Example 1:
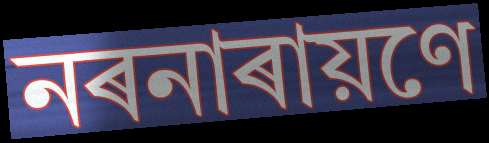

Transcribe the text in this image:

নৰনাৰায়ণে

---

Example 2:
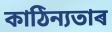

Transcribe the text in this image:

কাঠিন্যতাৰ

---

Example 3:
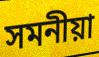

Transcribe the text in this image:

সমনীয়া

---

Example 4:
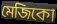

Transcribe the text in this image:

মেজিকো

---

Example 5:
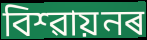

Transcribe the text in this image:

বিশ্ৱায়নৰ